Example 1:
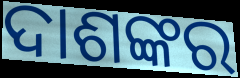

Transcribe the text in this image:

ଦାଶଙ୍କର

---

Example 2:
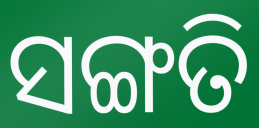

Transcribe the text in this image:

ସଙ୍ଗତି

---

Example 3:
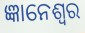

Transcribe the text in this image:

ଜ୍ଞାନେଶ୍ୱର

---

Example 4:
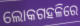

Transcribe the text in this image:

ଲୋକଗହଳିରେ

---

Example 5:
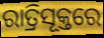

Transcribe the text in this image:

ରାତ୍ରିସୂକ୍ତରେ